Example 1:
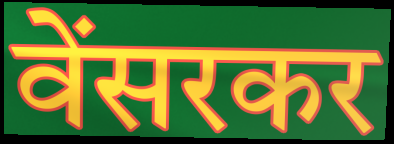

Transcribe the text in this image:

वेंसरकर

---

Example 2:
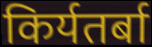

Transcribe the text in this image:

किर्यतर्बा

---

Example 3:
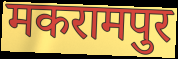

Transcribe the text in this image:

मकरामपुर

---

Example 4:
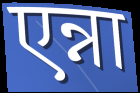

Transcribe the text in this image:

एन्ना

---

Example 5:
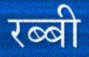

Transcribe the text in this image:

रब्बी